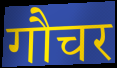
गौचर